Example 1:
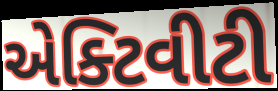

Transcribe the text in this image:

એક્ટિવીટી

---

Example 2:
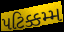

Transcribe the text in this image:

પટિક્કમ્મ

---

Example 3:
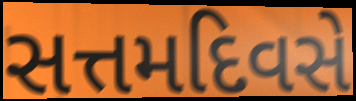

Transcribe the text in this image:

સત્તમદિવસે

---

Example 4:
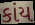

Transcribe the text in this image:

કાંય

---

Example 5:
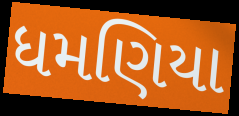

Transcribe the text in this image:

ધમણિયા